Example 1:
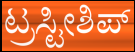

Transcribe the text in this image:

ಟ್ರಸ್ಟೀಶಿಪ್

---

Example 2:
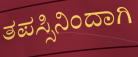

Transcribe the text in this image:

ತಪಸ್ಸಿನಿಂದಾಗಿ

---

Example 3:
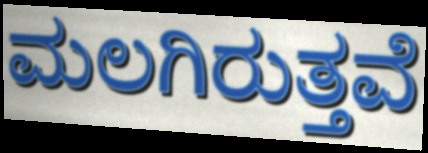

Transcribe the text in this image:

ಮಲಗಿರುತ್ತವೆ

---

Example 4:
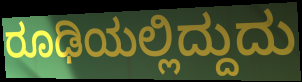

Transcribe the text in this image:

ರೂಢಿಯಲ್ಲಿದ್ದುದು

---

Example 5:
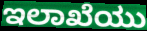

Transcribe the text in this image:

ಇಲಾಖೆಯು